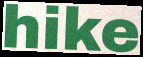
hike